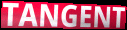
TANGENT